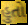
હુતો